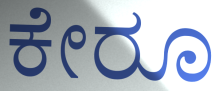
ಕೇರೂ